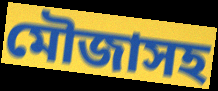
মৌজাসহ